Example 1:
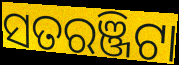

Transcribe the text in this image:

ସତରଞ୍ଜିଟା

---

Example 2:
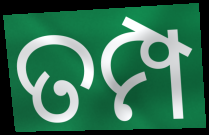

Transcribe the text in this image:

ତମ୍ପ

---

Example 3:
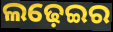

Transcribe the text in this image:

ଲଢ଼େଇର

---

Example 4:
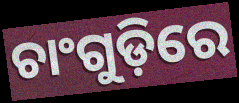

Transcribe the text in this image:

ଚାଂଗୁଡ଼ିରେ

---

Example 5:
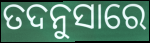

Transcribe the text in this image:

ତଦନୁସାରେ